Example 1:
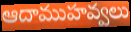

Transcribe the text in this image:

ఆదాముహవ్వలు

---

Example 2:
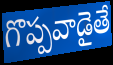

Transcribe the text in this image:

గొప్పవాడైతే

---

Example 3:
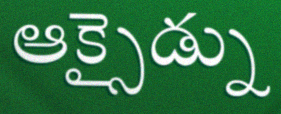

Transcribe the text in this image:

ఆక్సైడ్ను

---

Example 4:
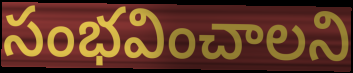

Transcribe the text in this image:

సంభవించాలని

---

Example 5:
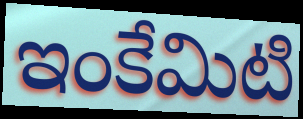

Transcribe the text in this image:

ఇంకేమిటి